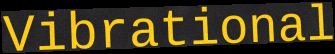
Vibrational